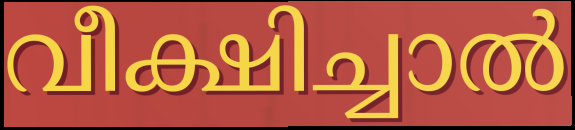
വീക്ഷിച്ചാൽ